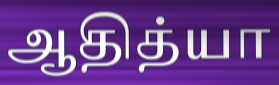
ஆதித்யா